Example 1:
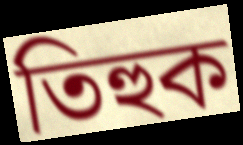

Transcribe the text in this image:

তিহুক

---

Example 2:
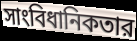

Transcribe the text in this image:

সাংবিধানিকতার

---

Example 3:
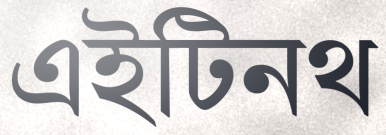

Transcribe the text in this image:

এইটিনথ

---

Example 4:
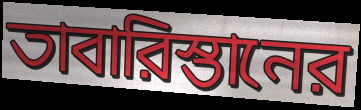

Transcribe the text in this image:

তাবারিস্তানের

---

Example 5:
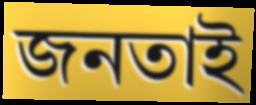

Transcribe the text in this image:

জনতাই